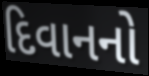
દિવાનનો